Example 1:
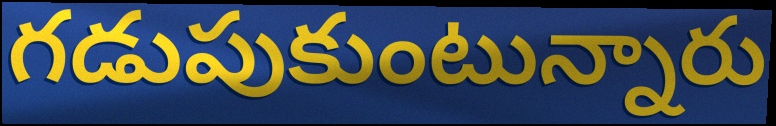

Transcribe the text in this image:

గడుపుకుంటున్నారు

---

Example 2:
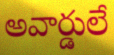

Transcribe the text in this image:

అవార్డులే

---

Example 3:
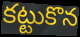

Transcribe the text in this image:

కట్టుకొన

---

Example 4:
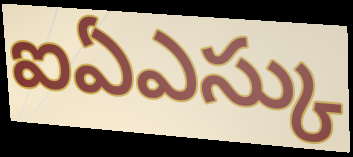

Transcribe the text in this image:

ఐఏఎస్కు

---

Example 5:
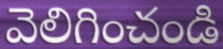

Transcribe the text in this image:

వెలిగించండి